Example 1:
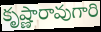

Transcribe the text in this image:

కృష్ణారావుగారి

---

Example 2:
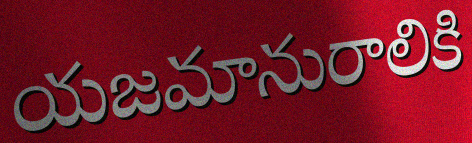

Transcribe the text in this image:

యజమానురాలికి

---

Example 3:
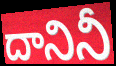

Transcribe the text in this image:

దానినీ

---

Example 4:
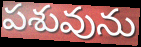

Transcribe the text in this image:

పశువును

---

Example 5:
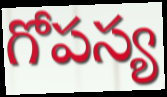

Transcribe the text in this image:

గోపస్య